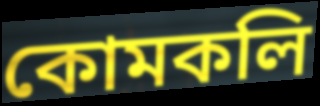
কোমকলি